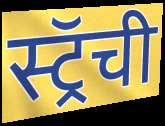
स्ट्रॅची